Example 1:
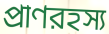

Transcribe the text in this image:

প্রাণরহস্য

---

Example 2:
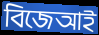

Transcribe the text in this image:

বিজেআই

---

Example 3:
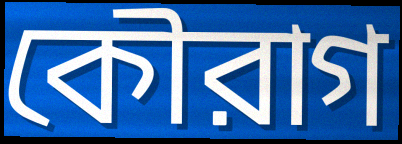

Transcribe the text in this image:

কৌরাগ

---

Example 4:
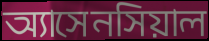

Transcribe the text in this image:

অ্যাসেনসিয়াল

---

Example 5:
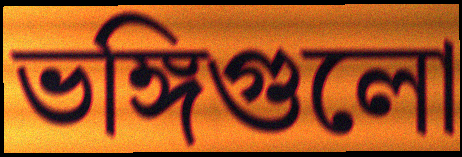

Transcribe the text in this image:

ভঙ্গিগুলো